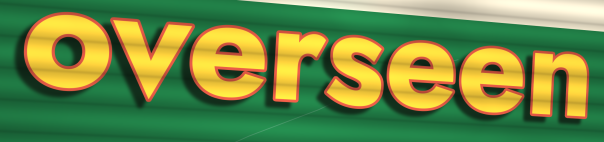
overseen